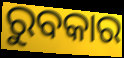
ରୁବକାର